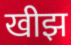
खीझ